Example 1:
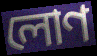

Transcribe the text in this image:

লোণ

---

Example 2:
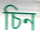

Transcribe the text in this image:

চিন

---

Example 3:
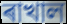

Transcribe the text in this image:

ৰাখাল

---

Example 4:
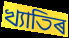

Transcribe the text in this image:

খ্যাতিৰ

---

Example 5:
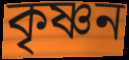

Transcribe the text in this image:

কৃষ্ণন